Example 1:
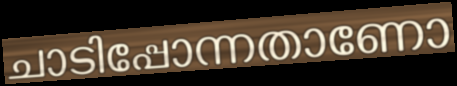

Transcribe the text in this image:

ചാടിപ്പോന്നതാണോ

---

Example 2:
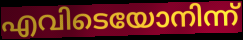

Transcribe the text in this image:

എവിടെയോനിന്ന്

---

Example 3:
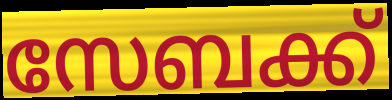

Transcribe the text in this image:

സേബക്ക്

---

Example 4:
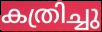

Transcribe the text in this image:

കത്രിച്ചു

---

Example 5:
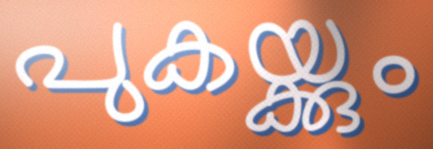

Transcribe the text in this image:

പുകയ്ക്കും